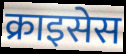
क्राइसेस